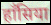
हाँसिया